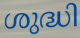
ശുദ്ധി